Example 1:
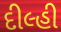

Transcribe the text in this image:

દીલ્હી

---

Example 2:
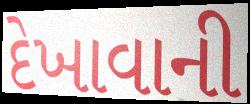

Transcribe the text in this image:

દેખાવાની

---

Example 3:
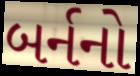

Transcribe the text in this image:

બર્નનો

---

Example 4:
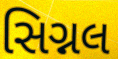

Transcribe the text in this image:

સિગ્નલ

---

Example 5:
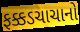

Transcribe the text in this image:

ફક્કડચાચાનો